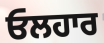
ਓਲਹਾਰ